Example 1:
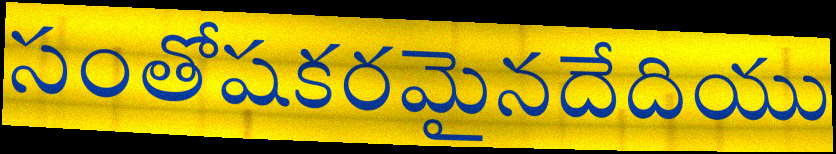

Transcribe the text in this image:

సంతోషకరమైనదేదియు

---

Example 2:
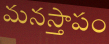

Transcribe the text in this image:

మనస్తాపం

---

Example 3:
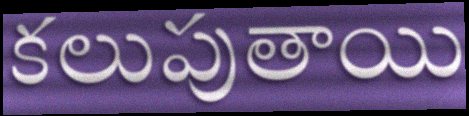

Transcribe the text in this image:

కలుపుతాయి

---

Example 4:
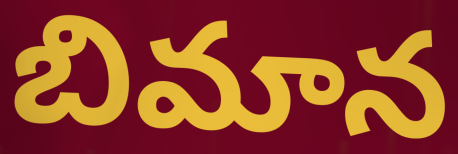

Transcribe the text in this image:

బిమాన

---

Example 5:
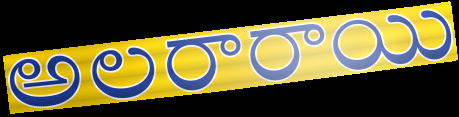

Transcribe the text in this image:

అలరారాయి